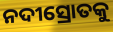
ନଦୀସ୍ରୋତକୁ